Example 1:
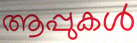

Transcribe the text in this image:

ആപ്പുകൾ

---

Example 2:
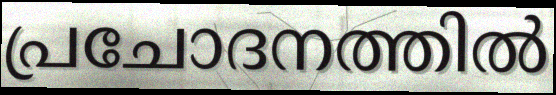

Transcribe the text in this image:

പ്രചോദനത്തിൽ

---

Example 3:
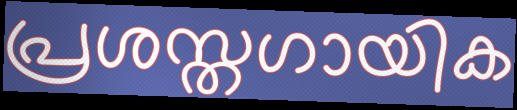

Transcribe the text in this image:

പ്രശസ്തഗായിക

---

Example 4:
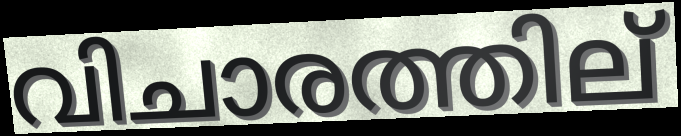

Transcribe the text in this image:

വിചാരത്തില്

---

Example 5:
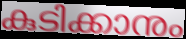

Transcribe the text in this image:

കുടിക്കാനും